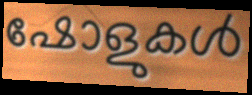
ഷോളുകൾ